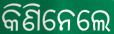
କିଣିନେଲେ